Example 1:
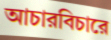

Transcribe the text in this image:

আচারবিচারে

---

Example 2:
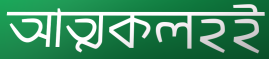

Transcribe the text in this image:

আত্মকলহই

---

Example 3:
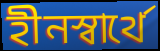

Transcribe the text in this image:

হীনস্বার্থে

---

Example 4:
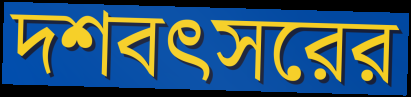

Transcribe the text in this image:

দশবৎসরের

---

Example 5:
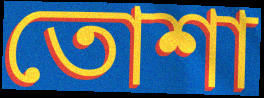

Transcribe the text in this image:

তোশা